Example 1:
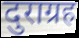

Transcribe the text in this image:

दुराग्रह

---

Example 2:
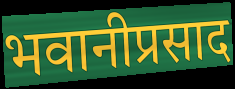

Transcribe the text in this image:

भवानीप्रसाद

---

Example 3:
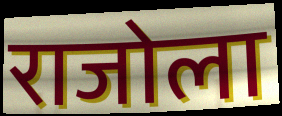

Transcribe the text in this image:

राजोला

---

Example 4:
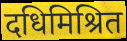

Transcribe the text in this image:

दधिमिश्रित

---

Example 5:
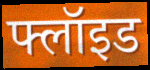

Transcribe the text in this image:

फ्लॉइड